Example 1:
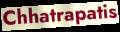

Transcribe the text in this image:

Chhatrapatis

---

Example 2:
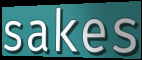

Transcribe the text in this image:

sakes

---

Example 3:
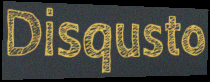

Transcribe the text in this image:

Disqusto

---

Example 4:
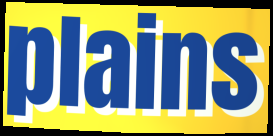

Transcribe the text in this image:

plains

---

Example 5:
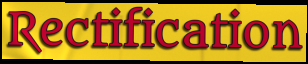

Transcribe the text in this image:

Rectification